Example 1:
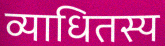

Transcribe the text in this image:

व्याधितस्य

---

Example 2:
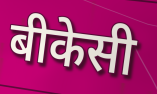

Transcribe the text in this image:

बीकेसी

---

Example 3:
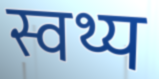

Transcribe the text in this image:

स्वथ्य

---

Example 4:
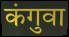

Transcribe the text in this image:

कंगुवा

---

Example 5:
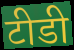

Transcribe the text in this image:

टीडी